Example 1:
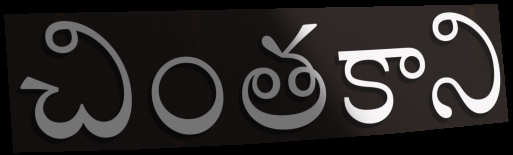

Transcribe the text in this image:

చింతకాని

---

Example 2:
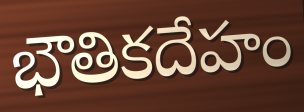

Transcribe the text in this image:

భౌతికదేహం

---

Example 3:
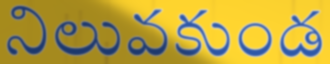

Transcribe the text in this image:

నిలువకుండ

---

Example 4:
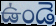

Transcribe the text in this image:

ఉండె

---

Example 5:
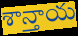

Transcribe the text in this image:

శాన్తాయ